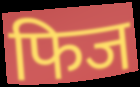
फिज